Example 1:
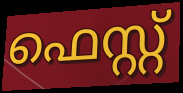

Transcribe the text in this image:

ഫെസ്റ്റ്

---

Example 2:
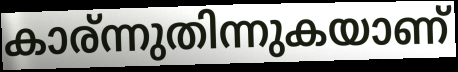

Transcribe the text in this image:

കാര്ന്നുതിന്നുകയാണ്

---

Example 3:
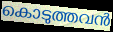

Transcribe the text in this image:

കൊടുത്തവൻ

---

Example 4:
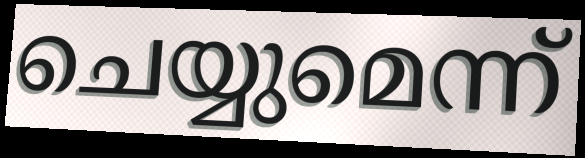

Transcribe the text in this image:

ചെയ്യുമെന്ന്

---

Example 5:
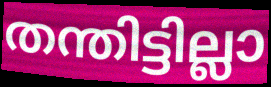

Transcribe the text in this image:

തന്തിട്ടില്ലാ